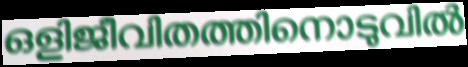
ഒളിജീവിതത്തിനൊടുവിൽ